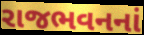
રાજભવનનાં